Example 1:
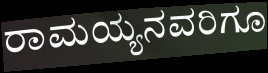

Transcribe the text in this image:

ರಾಮಯ್ಯನವರಿಗೂ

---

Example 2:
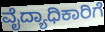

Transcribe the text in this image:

ವೈದ್ಯಾಧಿಕಾರಿಗೆ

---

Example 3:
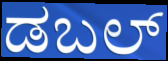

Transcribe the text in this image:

ಡಬಲ್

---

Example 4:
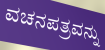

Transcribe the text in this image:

ವಚನಪತ್ರವನ್ನು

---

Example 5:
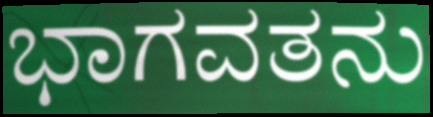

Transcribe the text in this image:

ಭಾಗವತನು